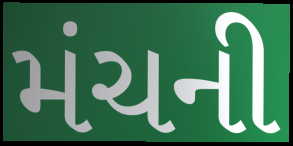
મંચની